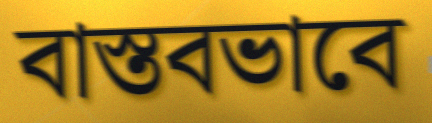
বাস্তবভাবে